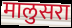
मालुसरा